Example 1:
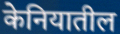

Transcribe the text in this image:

केनियातील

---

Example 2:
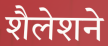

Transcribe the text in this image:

शैलेशने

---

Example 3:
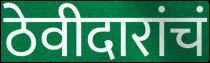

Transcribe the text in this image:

ठेवीदारांचं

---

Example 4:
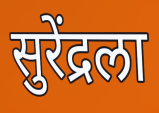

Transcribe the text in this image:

सुरेंद्रला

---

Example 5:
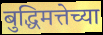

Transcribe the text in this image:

बुद्धिमत्तेच्या